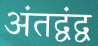
अंतद्वंद्व